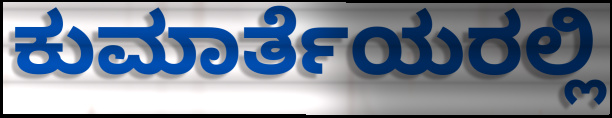
ಕುಮಾರ್ತೆಯರಲ್ಲಿ